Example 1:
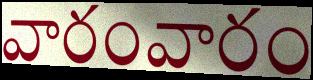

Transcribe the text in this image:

వారంవారం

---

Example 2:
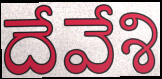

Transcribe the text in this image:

దేవేశి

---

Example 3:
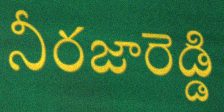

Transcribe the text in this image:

నీరజారెడ్డి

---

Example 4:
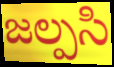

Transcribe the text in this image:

జల్పసి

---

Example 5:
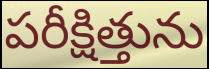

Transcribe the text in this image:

పరీక్షిత్తును